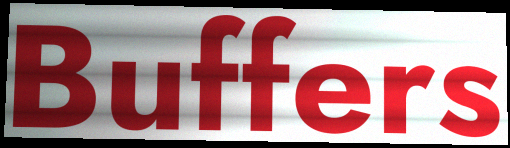
Buffers